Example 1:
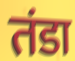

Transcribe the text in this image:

तंडा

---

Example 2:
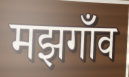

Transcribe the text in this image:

मझगाँव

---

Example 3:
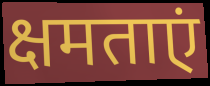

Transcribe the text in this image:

क्षमताएं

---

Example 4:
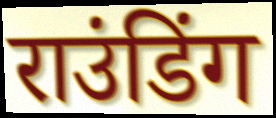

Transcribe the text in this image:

राउंडिंग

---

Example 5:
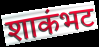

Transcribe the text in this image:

शाकंभट